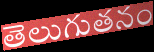
తెలుగుతనం